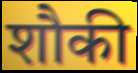
शौकी